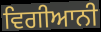
ਵਿਗੀਆਨੀ